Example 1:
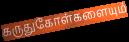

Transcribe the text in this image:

கருதுகோள்களையும்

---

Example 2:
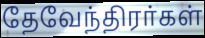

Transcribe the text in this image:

தேவேந்திரர்கள்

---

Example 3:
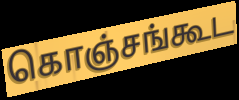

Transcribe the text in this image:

கொஞ்சங்கூட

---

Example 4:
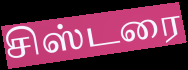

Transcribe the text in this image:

சிஸ்டரை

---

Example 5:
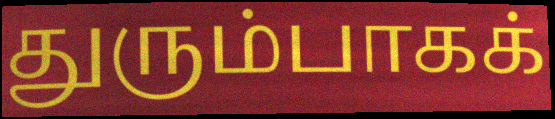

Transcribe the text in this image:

துரும்பாகக்